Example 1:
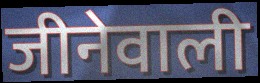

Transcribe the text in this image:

जीनेवाली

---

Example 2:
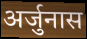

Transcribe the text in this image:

अर्जुनास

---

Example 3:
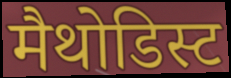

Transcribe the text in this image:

मैथोडिस्ट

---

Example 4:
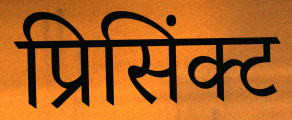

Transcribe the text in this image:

प्रिसिंक्ट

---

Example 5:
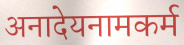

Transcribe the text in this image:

अनादेयनामकर्म